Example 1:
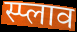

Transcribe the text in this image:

स्प्लाव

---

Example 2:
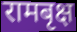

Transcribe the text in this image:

रामबृक्ष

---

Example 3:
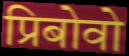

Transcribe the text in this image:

प्रिबोवो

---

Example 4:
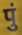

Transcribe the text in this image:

पुं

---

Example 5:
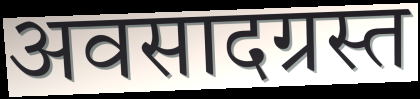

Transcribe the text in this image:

अवसादग्रस्त